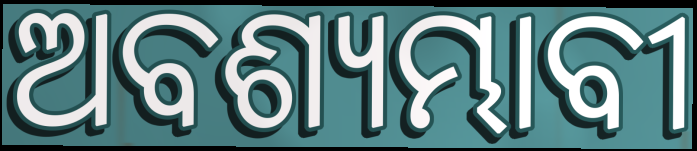
ଅବଶ୍ୟମ୍ଭାବୀ